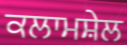
ਕਲਾਮਸ਼ੇਲ